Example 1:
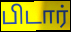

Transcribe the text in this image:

பிடார்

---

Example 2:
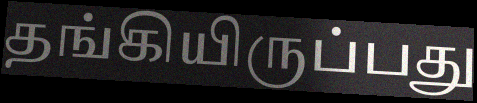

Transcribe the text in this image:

தங்கியிருப்பது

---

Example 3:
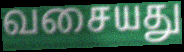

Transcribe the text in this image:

வசையது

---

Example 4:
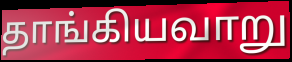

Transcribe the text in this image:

தாங்கியவாறு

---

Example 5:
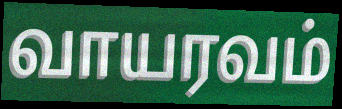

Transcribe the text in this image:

வாயரவம்